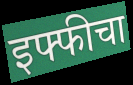
इफ्फीचा